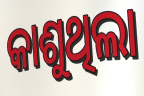
କାଶୁଥିଲା